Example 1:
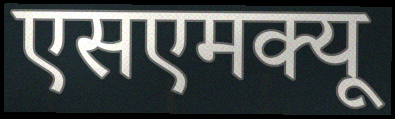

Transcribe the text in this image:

एसएमक्यू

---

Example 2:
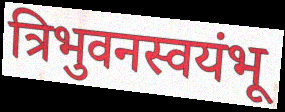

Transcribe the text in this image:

त्रिभुवनस्वयंभू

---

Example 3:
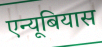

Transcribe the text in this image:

एन्यूबियास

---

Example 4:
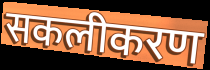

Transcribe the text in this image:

सकलीकरण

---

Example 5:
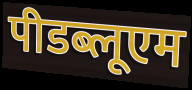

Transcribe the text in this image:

पीडब्लूएम